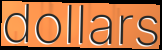
dollars